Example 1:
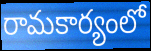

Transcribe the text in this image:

రామకార్యంలో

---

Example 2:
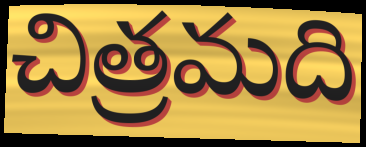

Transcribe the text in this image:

చిత్రమది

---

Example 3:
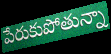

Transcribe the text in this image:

పేరుకుపోతున్నా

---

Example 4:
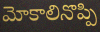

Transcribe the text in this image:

మోకాలినొప్పి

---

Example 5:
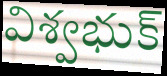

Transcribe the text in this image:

విశ్వభుక్